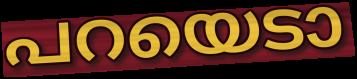
പറയെടാ